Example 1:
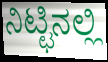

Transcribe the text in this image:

ನಿಟ್ಟಿನಲ್ಲಿ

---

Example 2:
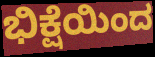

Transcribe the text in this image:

ಭಿಕ್ಷೆಯಿಂದ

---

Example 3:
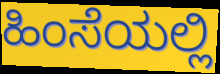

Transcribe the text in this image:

ಹಿಂಸೆಯಲ್ಲಿ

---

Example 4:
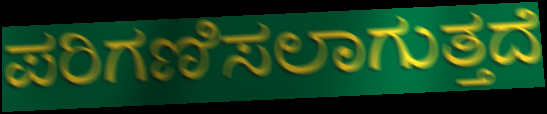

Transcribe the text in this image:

ಪರಿಗಣಿಸಲಾಗುತ್ತದೆ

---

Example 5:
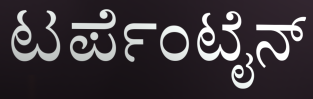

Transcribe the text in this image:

ಟರ್ಪೆಂಟೈನ್